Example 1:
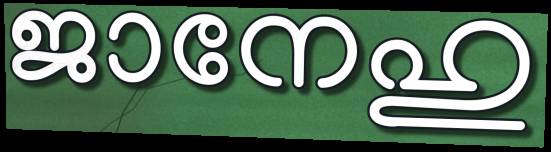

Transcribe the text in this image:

ജാനേഹു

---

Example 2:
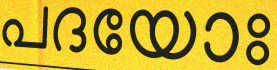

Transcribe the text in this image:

പദയോഃ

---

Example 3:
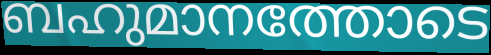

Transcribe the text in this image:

ബഹുമാനത്തോടെ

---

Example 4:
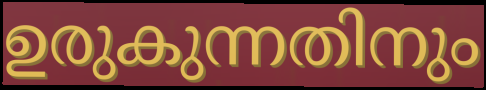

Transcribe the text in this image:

ഉരുകുന്നതിനും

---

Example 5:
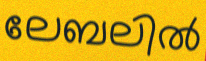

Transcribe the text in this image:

ലേബലിൽ